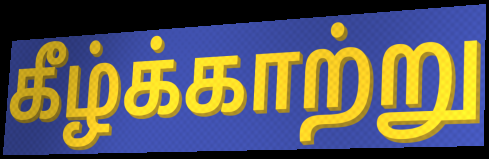
கீழ்க்காற்று